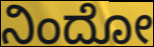
ನಿಂದೋ